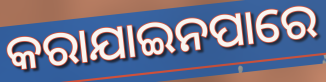
କରାଯାଇନପାରେ